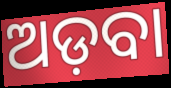
ଅଡ଼ବା